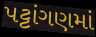
પટ્ટાંગણમાં